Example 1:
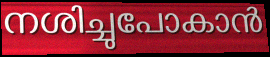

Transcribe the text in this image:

നശിച്ചുപോകാൻ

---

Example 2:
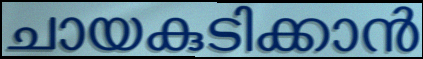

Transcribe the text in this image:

ചായകുടിക്കാൻ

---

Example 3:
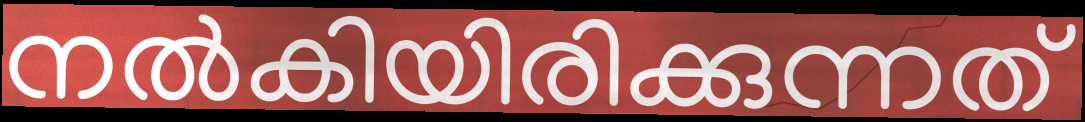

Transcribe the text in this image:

നൽകിയിരിക്കുന്നത്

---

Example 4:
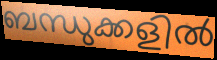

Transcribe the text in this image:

ബന്ധുക്കളിൽ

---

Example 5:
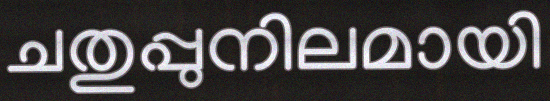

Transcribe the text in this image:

ചതുപ്പുനിലമായി